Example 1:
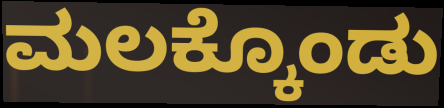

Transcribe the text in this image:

ಮಲಕ್ಕೊಂಡು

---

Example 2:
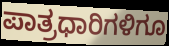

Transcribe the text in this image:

ಪಾತ್ರಧಾರಿಗಳಿಗೂ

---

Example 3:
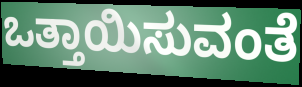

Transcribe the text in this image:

ಒತ್ತಾಯಿಸುವಂತೆ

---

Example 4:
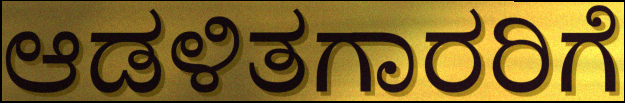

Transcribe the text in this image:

ಆಡಳಿತಗಾರರಿಗೆ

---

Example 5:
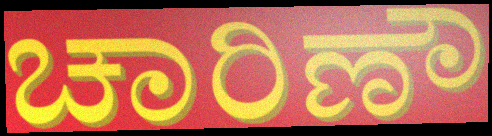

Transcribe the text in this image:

ಚಾರಿಣೌ